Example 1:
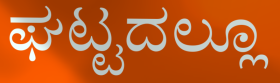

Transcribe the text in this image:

ಘಟ್ಟದಲ್ಲೂ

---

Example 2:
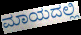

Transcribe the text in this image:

ಮಾಯದಲ್ಲಿ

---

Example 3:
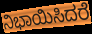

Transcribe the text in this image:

ನಿಭಾಯಿಸಿದರೆ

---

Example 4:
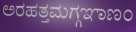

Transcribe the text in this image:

ಅರಹತ್ತಮಗ್ಗಞಾಣಂ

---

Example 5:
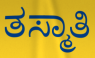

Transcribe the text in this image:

ತಸ್ಮಾತಿ